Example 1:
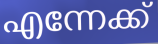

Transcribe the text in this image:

എന്നേക്ക്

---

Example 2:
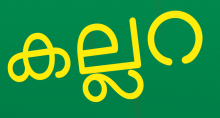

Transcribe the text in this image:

കല്ലറ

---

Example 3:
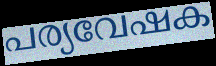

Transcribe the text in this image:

പര്യവേഷക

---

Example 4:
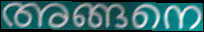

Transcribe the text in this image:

അങ്ങനെ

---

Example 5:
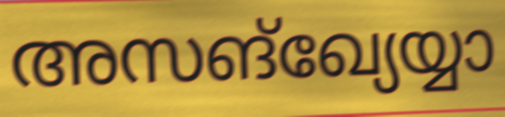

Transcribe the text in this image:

അസങ്ഖ്യേയ്യാ